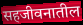
सहजीवनातील